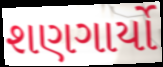
શણગાર્યો